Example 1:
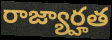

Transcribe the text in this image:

రాజ్యార్హత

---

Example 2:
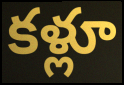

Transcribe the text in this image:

కళ్లూ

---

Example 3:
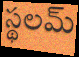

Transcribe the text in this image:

స్థలమ్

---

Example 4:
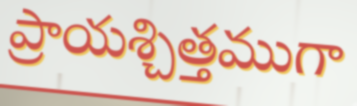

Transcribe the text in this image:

ప్రాయశ్చిత్తముగా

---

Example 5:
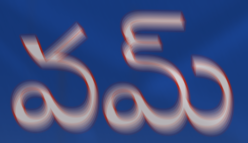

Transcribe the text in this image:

వమ్